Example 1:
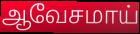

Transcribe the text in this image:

ஆவேசமாய்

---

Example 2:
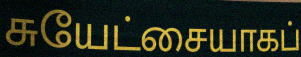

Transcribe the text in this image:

சுயேட்சையாகப்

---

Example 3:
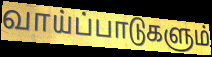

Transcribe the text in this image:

வாய்ப்பாடுகளும்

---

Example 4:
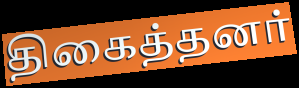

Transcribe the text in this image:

திகைத்தனர்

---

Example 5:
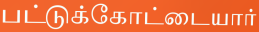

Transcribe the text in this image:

பட்டுக்கோட்டையார்